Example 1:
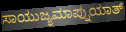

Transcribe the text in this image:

ಸಾಯುಜ್ಯಮಾಪ್ನುಯಾತ್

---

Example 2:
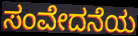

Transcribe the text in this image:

ಸಂವೇದನೆಯ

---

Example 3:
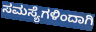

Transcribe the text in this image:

ಸಮಸ್ಯೆಗಳಿಂದಾಗಿ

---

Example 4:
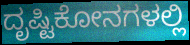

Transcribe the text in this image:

ದೃಷ್ಟಿಕೋನಗಳಲ್ಲಿ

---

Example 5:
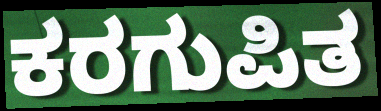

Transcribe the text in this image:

ಕರಗುಪಿತ